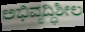
ಅಭಿವೃದ್ಧಿಶೀಲ